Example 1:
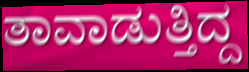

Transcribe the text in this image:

ತಾವಾಡುತ್ತಿದ್ದ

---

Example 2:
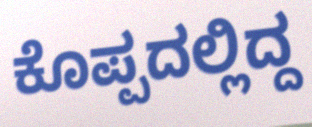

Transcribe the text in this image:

ಕೊಪ್ಪದಲ್ಲಿದ್ದ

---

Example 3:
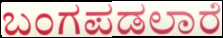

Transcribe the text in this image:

ಬಂಗಪಡಲಾರೆ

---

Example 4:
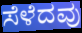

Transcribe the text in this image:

ಸೆಳೆದವು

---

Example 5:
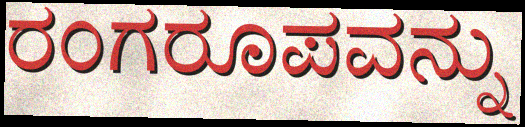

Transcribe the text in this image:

ರಂಗರೂಪವನ್ನು